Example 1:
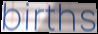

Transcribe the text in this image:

births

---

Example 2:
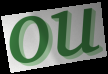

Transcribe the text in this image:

ou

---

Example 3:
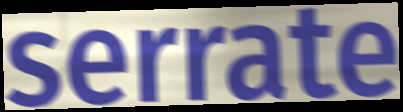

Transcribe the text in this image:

serrate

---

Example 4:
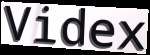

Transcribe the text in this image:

Videx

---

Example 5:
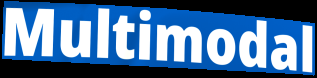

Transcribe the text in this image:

Multimodal